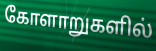
கோளாறுகளில்